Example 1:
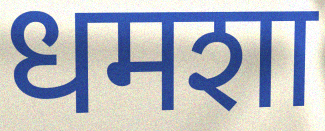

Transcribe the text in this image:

धमशा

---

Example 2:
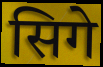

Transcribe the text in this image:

सिगे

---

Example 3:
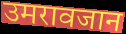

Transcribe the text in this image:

उमरावजान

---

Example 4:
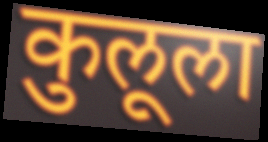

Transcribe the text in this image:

कुलूला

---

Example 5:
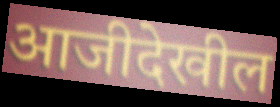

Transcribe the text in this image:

आजीदेखील